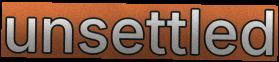
unsettled